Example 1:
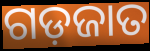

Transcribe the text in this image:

ଗଡ଼ଜାତ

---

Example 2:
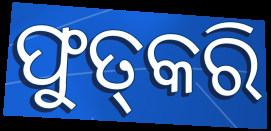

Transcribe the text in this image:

ଫୁତ୍‌କରି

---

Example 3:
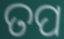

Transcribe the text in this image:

ତପ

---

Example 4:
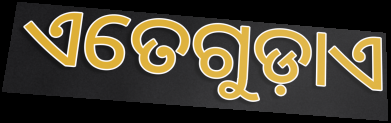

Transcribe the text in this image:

ଏତେଗୁଡ଼ାଏ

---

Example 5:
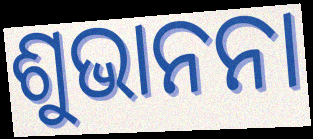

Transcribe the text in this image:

ଶୁଭାନନା